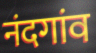
नंदगांव